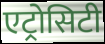
एट्रोसिटी